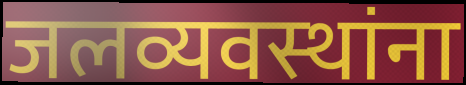
जलव्यवस्थांना